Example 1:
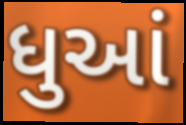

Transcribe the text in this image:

ધુઆં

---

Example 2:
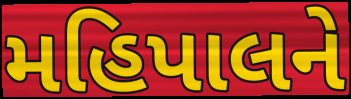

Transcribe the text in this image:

મહિપાલને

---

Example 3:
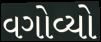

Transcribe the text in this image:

વગોવ્યો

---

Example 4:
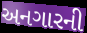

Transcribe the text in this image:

અનગારની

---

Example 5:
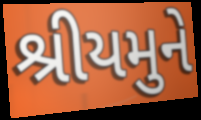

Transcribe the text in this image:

શ્રીયમુને